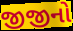
જીજીનો